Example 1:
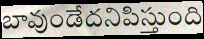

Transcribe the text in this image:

బావుండేదనిపిస్తుంది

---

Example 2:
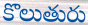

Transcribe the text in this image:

కొలుతురు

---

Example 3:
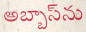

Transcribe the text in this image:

అబ్బాస్‌ను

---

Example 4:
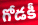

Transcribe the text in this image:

గోడకీ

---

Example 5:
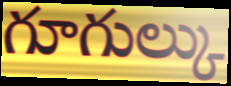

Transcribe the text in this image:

గూగుల్కు